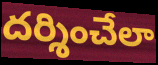
దర్శించేలా